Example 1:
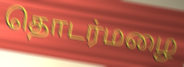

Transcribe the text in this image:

தொடர்மழை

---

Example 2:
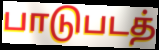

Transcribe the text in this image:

பாடுபடத்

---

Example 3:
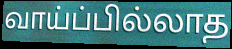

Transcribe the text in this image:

வாய்ப்பில்லாத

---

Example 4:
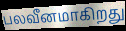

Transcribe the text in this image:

பலவீனமாகிறது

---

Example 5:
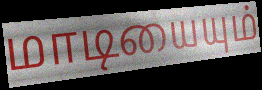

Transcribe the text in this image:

மாடியையும்